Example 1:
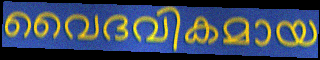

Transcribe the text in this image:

വൈദവികമായ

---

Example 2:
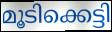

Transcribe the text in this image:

മൂടിക്കെട്ടി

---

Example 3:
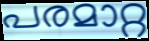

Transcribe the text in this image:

പരമാറ്റ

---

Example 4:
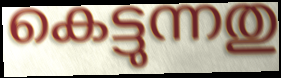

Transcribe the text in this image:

കെട്ടുന്നതു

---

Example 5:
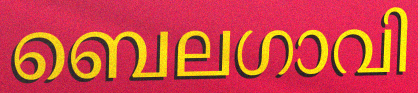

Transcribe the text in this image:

ബെലഗാവി